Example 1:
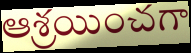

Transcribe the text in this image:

ఆశ్రయించగా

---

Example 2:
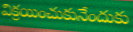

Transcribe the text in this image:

విక్రయించుకునేందుకు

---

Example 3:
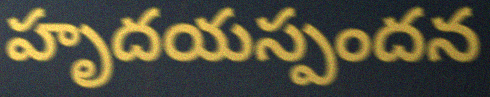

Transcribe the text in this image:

హృదయస్పందన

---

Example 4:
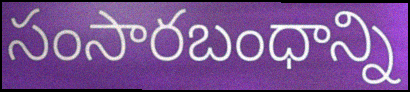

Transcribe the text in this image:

సంసారబంధాన్ని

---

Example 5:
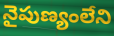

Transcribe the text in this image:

నైపుణ్యంలేని